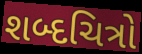
શબ્દચિત્રો